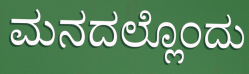
ಮನದಲ್ಲೊಂದು